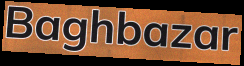
Baghbazar